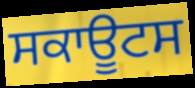
ਸਕਾਊਟਸ